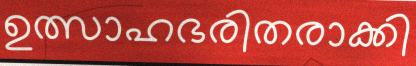
ഉത്സാഹഭരിതരാക്കി